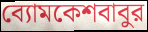
ব্যোমকেশবাবুর